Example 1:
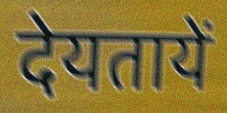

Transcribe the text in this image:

देयतायें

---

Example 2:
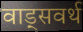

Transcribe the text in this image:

वाड्सवर्थ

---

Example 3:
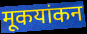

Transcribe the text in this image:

मूकयांकन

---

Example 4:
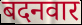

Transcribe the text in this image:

बदनवार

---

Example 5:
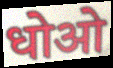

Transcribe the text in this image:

धोओ